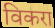
विकरा